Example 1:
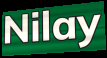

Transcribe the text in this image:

Nilay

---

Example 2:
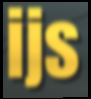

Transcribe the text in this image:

ijs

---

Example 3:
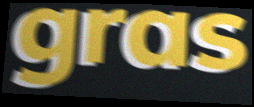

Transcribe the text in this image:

gras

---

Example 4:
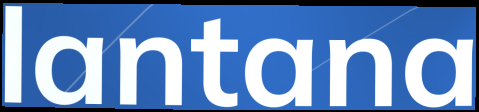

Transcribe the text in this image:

lantana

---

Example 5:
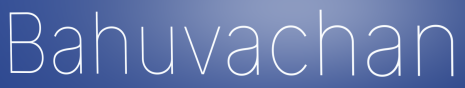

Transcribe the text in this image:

Bahuvachan